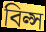
বিল্স